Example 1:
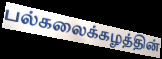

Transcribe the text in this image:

பல்கலைக்கழத்தின்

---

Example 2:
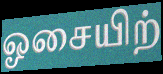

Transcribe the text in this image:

ஓசையிற்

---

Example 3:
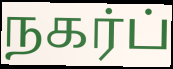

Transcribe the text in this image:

நகர்ப்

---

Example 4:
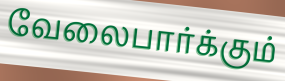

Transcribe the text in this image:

வேலைபார்க்கும்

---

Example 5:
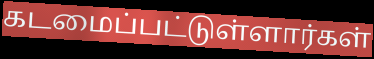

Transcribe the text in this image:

கடமைப்பட்டுள்ளார்கள்